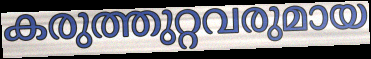
കരുത്തുറ്റവരുമായ